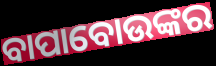
ବାପାବୋଉଙ୍କର